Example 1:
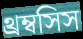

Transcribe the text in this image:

থ্রম্বসিস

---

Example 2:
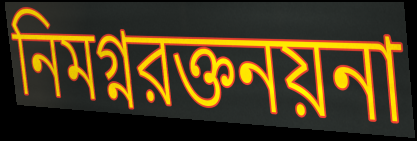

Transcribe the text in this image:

নিমগ্নরক্তনয়না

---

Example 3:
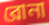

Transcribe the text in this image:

রোনা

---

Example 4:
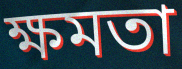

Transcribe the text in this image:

ক্ষমতা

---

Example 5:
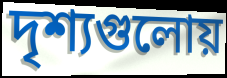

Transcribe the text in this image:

দৃশ্যগুলোয়